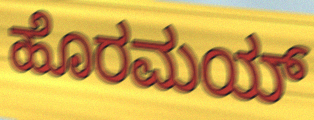
ಹೊರಮಯ್